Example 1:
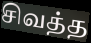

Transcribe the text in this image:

சிவத்த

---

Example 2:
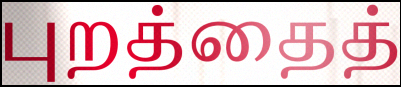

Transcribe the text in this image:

புறத்தைத்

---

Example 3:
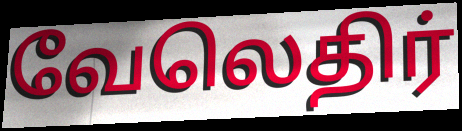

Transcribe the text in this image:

வேலெதிர்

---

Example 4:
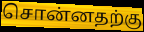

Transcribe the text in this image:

சொன்னதற்கு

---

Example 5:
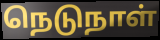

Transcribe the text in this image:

நெடுநாள்